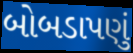
બોબડાપણું